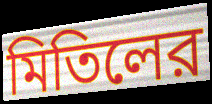
মিতিলের